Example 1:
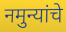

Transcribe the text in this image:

नमुन्यांचे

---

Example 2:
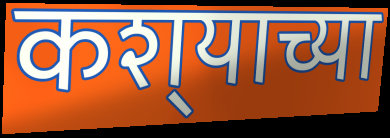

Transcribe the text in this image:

कश्याच्या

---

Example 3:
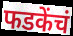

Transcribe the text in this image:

फडकेंचं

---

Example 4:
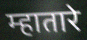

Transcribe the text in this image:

म्हातारे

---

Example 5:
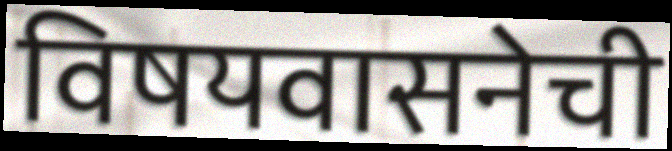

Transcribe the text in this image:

विषयवासनेची